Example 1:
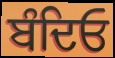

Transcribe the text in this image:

ਬੰਦਿਓ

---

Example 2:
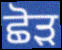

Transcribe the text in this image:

ਛੋੜ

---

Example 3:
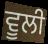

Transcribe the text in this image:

ਵੂਲੀ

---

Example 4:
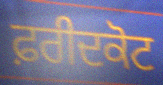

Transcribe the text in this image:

ਫ਼ਰੀਦਕੋਟ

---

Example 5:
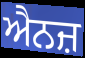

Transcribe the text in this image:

ਐਨਜ਼